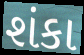
શંકા